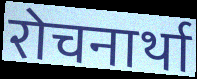
रोचनार्था